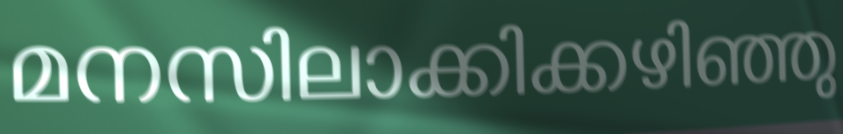
മനസിലാക്കിക്കഴിഞ്ഞു